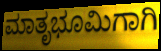
ಮಾತೃಭೂಮಿಗಾಗಿ